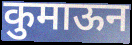
कुमाऊन